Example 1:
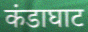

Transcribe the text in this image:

कंडाघाट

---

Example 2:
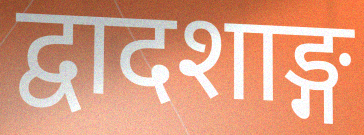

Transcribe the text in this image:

द्वादशाङ्ग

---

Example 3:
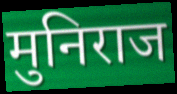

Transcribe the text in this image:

मुनिराज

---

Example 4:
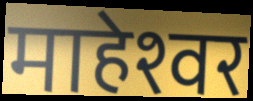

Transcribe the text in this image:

माहेश्वर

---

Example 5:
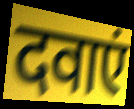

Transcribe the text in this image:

दवाएं